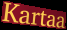
Kartaa